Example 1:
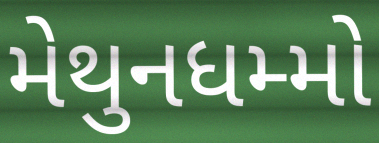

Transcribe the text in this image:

મેથુનધમ્મો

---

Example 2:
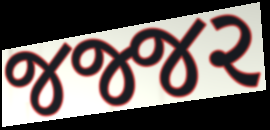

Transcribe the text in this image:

જજ્જર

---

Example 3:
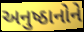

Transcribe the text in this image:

અનુષ્ઠાનોને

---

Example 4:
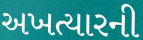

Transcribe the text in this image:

અખત્યારની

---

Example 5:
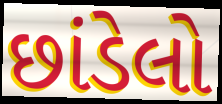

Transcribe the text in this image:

છાંડેલો